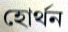
হোর্থন